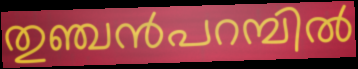
തുഞ്ചൻപറമ്പിൽ